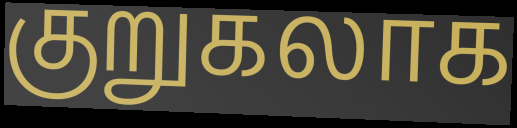
குறுகலாக